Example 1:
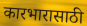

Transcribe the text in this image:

कारभारासाठी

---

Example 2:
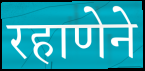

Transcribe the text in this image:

रहाणेने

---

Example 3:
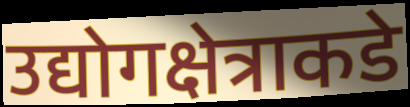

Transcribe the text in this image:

उद्योगक्षेत्राकडे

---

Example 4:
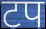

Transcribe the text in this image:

टप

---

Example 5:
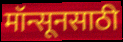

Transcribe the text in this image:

मॉन्सूनसाठी